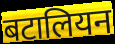
बटालियन